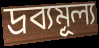
দ্রব্যমূল্য